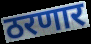
ठरणार